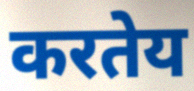
करतेय